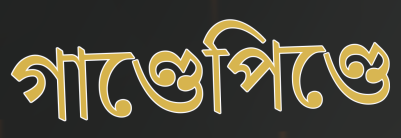
গাণ্ডেপিণ্ডে